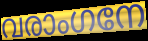
വരാംഗനേ